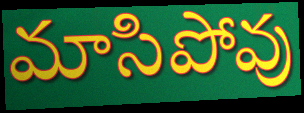
మాసిపోవు